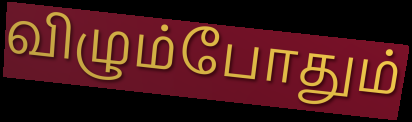
விழும்போதும்